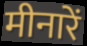
मीनारें